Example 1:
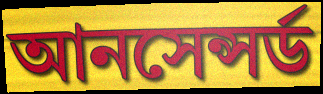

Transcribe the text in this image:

আনসেন্সর্ড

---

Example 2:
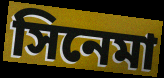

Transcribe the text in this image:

সিনেমা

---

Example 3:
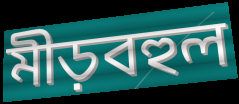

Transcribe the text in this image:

মীড়বহুল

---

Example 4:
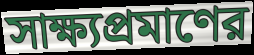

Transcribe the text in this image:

সাক্ষ্যপ্রমাণের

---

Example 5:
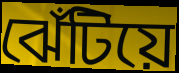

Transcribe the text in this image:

ঝেঁটিয়ে